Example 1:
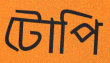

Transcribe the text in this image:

টোপি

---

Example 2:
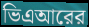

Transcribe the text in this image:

ভিএআরের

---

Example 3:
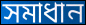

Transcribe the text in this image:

সমাধান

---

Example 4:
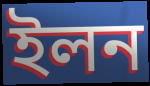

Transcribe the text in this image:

ইলন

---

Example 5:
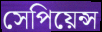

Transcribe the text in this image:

সেপিয়েন্স